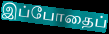
இப்போதைப்